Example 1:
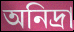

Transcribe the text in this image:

অনিদ্রা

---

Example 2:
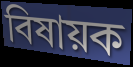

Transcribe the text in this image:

বিষায়ক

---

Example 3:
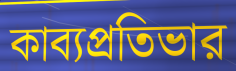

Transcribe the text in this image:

কাব্যপ্রতিভার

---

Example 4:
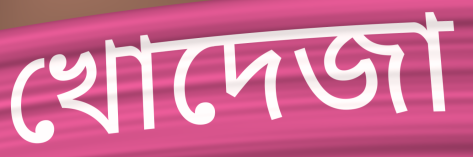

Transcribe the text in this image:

খোদেজা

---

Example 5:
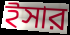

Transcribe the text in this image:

ইসার